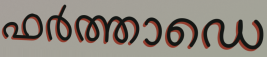
ഫർത്താഡെ